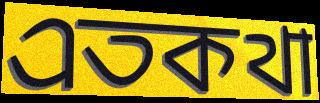
এতকথা